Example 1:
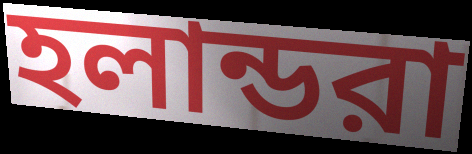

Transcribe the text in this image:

হলান্ডরা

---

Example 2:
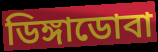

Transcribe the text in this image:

ডিঙ্গাডোবা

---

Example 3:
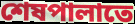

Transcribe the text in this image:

শেষপালাতে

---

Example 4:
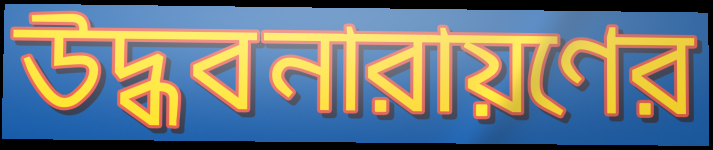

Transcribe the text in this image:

উদ্ধবনারায়ণের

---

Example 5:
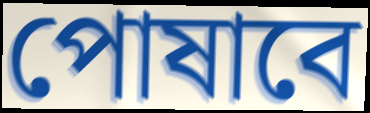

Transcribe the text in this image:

পোষাবে